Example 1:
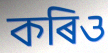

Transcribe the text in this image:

কৰিও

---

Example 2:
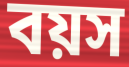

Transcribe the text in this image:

বয়স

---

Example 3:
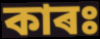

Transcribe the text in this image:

কাৰঃ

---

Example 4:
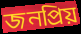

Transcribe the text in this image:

জনপ্ৰিয়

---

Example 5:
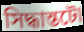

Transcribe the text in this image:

সিদ্ধান্তটো